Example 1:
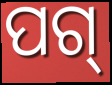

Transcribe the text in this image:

ପଗ୍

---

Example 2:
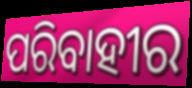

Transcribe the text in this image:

ପରିବାହୀର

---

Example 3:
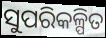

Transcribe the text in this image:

ସୁପରିକଳ୍ପିତ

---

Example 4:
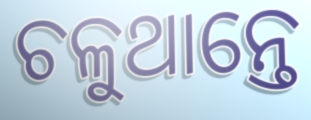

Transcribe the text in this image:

ଚଳୁଥାନ୍ତେ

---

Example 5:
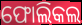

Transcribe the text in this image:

ଫୋଲିକଲ